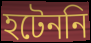
হটেননি